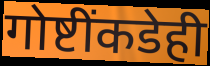
गोष्टींकडेही